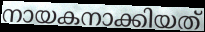
നായകനാക്കിയത്